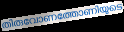
തിരുവോണത്തോണിയുടെ